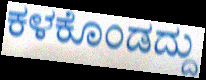
ಕಳಕೊಂಡದ್ದು